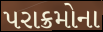
પરાક્રમોના